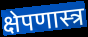
क्षेपणास्त्र